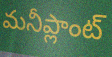
మనీప్లాంట్